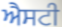
ਐਸਟੀ